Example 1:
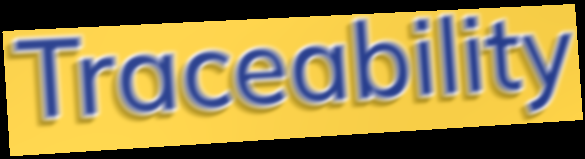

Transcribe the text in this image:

Traceability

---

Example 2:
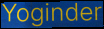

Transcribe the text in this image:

Yoginder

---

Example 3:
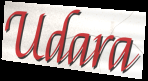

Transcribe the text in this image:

Udara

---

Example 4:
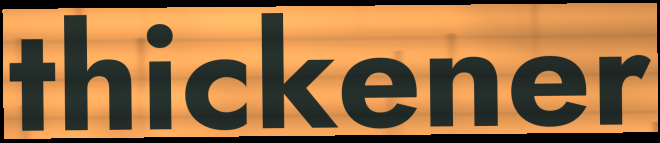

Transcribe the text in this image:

thickener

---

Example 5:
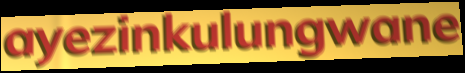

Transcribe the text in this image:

ayezinkulungwane